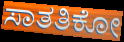
ಸಾತತಿಕೋ